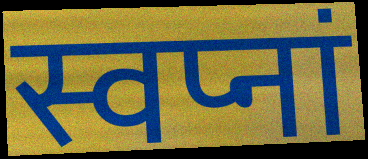
स्वप्नां